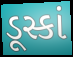
ડૂસ્કાં